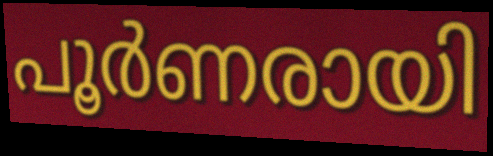
പൂർണരായി